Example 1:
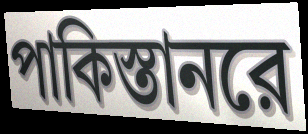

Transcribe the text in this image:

পাকিস্তানরে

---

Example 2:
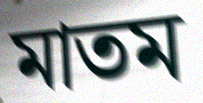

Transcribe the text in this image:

মাতম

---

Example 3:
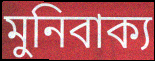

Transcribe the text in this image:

মুনিবাক্য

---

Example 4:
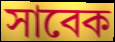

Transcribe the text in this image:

সাবেক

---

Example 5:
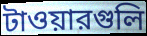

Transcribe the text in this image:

টাওয়ারগুলি